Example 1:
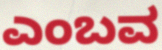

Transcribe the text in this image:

ಎಂಬವ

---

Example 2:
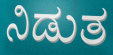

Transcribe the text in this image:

ನಿಡುತ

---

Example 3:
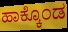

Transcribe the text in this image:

ಹಾಕ್ಕೊಂಡ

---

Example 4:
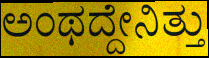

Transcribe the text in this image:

ಅಂಥದ್ದೇನಿತ್ತು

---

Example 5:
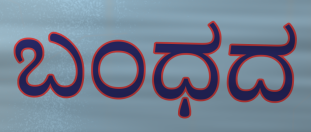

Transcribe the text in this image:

ಬಂಧದ